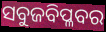
ସବୁଜବିପ୍ଳବର